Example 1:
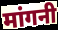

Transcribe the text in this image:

मांगनी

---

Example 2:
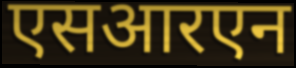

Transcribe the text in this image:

एसआरएन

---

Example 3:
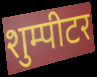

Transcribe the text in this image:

शुम्पीटर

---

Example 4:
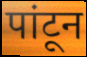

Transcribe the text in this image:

पांटून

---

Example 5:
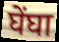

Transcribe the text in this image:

घेंघा